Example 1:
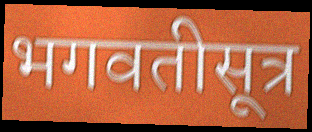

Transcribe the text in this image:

भगवतीसूत्र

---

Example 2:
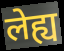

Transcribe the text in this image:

लेह्य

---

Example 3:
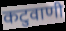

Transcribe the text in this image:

कटुवाणी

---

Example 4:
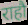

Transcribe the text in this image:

राहौ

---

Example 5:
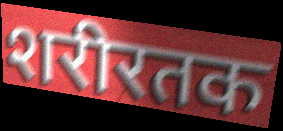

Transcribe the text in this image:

शरीरतक